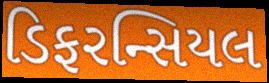
ડિફરન્સિયલ